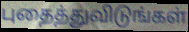
புதைத்துவிடுங்கள்